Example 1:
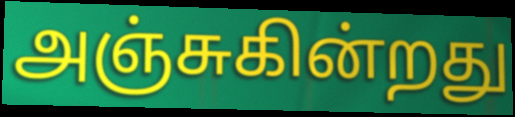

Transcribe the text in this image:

அஞ்சுகின்றது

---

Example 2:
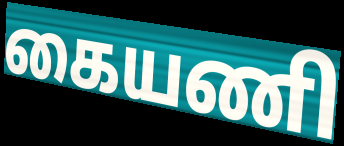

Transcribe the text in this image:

கையணி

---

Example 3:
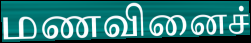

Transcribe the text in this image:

மணவினைச்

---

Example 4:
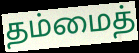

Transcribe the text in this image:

தம்மைத்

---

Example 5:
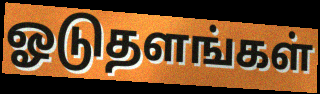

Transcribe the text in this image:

ஓடுதளங்கள்